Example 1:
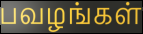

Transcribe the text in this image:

பவழங்கள்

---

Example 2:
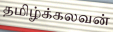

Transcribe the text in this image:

தமிழ்க்கலவன்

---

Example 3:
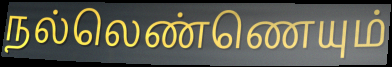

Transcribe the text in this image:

நல்லெண்ணெயும்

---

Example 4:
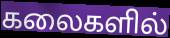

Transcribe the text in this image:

கலைகளில்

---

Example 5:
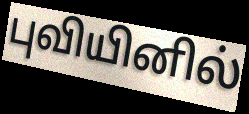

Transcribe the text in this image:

புவியினில்